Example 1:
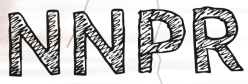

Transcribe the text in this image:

NNPR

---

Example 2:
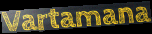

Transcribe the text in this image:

Vartamana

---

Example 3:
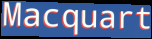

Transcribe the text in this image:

Macquart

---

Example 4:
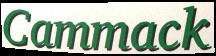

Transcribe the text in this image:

Cammack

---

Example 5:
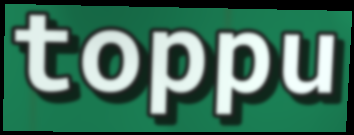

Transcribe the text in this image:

toppu